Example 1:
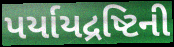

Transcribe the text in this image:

પર્યાયદ્રષ્ટિની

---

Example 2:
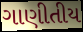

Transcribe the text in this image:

ગાણીતીય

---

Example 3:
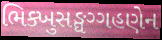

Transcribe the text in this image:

ભિક્ખુસઙ્ઘગ્ગહણેન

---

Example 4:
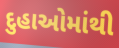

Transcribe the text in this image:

દુહાઓમાંથી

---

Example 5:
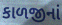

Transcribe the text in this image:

કાળજીનાં